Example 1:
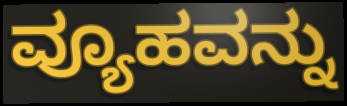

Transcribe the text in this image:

ವ್ಯೂಹವನ್ನು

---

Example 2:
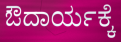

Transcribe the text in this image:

ಔದಾರ್ಯಕ್ಕೆ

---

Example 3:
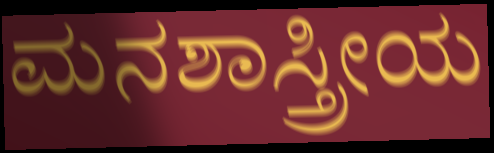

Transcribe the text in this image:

ಮನಶಾಸ್ತ್ರೀಯ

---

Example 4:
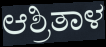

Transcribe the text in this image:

ಆಶ್ರಿತಾಳ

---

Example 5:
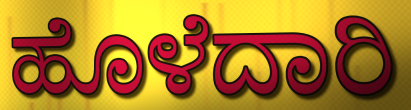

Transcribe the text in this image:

ಹೊಳೆದಾರಿ